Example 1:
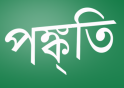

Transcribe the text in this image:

পঙ্ক্তি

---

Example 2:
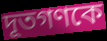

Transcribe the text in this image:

দূতগণকে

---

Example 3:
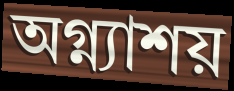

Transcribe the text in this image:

অগ্ন্যাশয়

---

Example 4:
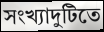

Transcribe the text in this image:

সংখ্যাদুটিতে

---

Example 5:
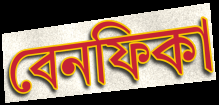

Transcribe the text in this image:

বেনফিকা